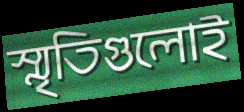
স্মৃতিগুলোই